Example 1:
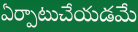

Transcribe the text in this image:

ఏర్పాటుచేయడమే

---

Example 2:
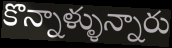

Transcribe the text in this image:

కొన్నాళ్ళున్నారు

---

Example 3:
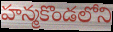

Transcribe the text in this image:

హన్మకొండలోని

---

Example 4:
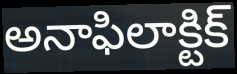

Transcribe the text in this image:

అనాఫిలాక్టిక్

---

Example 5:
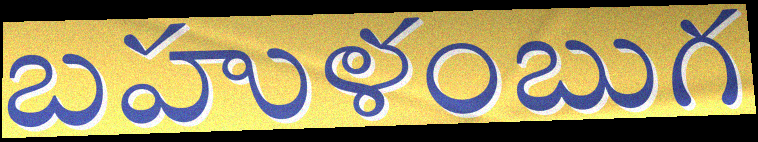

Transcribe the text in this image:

బహుళంబుగ